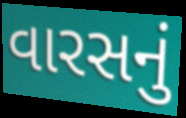
વારસનું